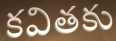
కవితకు